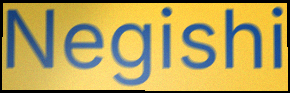
Negishi